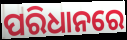
ପରିଧାନରେ